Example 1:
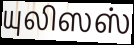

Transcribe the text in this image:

யுலிஸஸ்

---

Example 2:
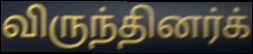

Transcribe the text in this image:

விருந்தினர்க்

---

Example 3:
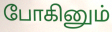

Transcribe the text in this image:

போகினும்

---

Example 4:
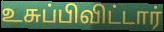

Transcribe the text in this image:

உசுப்பிவிட்டார்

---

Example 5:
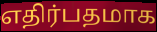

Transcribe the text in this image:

எதிர்பதமாக